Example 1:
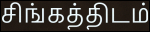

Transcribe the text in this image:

சிங்கத்திடம்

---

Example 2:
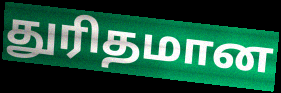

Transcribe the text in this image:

துரிதமான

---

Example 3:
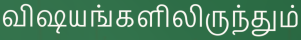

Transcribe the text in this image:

விஷயங்களிலிருந்தும்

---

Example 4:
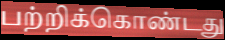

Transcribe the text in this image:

பற்றிக்கொண்டது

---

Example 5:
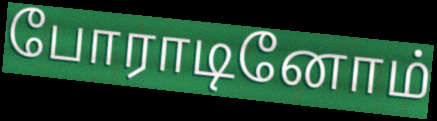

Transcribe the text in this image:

போராடினோம்